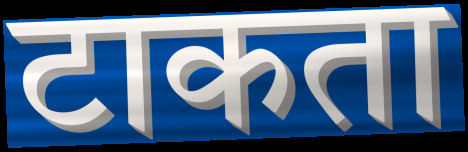
टाकता